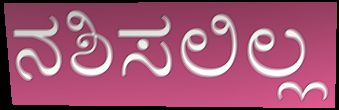
ನಶಿಸಲಿಲ್ಲ